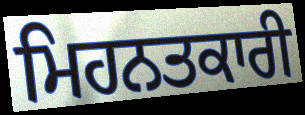
ਮਿਹਨਤਕਾਰੀ